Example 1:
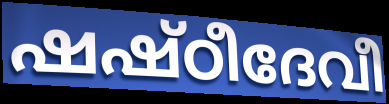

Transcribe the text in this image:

ഷഷ്ഠീദേവീ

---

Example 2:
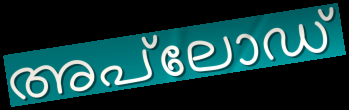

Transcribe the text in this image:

അപ്‌ലോഡ്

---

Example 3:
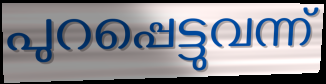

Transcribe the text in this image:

പുറപ്പെട്ടുവന്ന്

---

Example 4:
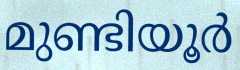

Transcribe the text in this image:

മുണ്ടിയൂർ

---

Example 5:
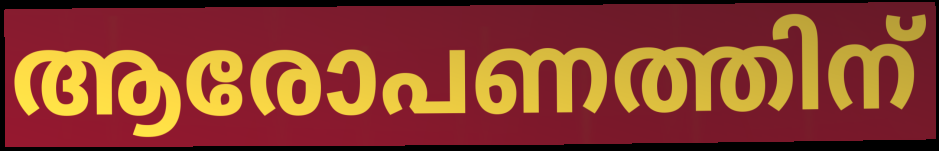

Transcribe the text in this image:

ആരോപണത്തിന്